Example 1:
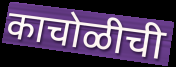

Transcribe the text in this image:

काचोळीची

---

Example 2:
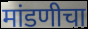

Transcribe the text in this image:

मांडणीचा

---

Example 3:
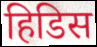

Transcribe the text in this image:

हिडिस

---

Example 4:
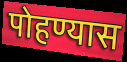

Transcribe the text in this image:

पोहण्यास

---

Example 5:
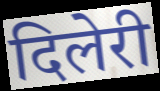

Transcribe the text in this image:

दिलेरी